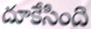
దూకేసింది